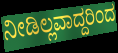
ನೀಡಿಲ್ಲವಾದ್ದರಿಂದ